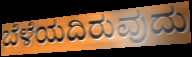
ಬೆಳೆಯದಿರುವುದು